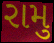
રામુ